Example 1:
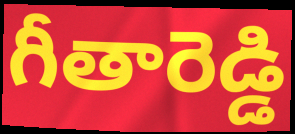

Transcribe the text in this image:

గీతారెడ్డి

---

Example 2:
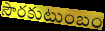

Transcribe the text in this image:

సౌరకుటుంబం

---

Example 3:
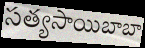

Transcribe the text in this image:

సత్యసాయిబాబా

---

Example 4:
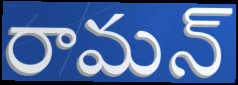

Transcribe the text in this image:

రామన్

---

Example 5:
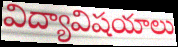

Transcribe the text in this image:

విద్యావిషయాలు